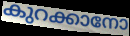
കുറക്കാനോ